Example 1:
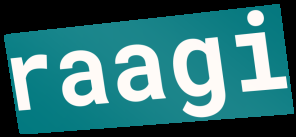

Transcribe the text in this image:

raagi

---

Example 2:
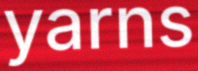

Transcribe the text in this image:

yarns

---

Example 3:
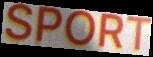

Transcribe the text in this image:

SPORT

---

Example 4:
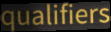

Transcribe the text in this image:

qualifiers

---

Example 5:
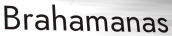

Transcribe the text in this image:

Brahamanas